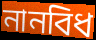
নানবিধ